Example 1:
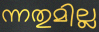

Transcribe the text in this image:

ന്നതുമില്ല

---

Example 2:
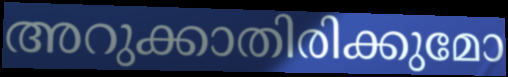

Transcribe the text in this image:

അറുക്കാതിരിക്കുമോ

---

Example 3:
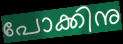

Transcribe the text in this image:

പോക്കിനു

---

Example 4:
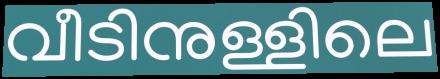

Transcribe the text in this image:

വീടിനുള്ളിലെ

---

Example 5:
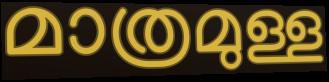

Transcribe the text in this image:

മാത്രമുള്ള